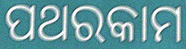
ପଥରକାମ